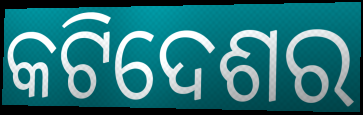
କଟିଦେଶର